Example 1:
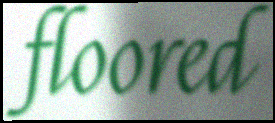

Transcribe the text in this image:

floored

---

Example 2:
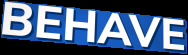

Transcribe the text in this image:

BEHAVE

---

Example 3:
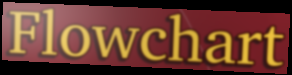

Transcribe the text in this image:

Flowchart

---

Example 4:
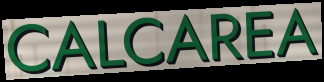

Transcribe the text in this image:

CALCAREA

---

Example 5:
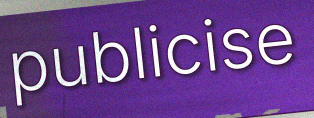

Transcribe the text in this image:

publicise